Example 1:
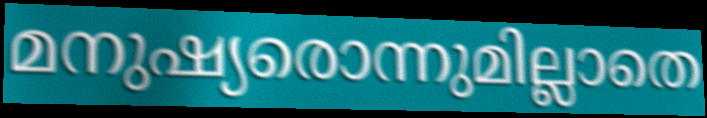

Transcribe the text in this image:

മനുഷ്യരൊന്നുമില്ലാതെ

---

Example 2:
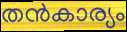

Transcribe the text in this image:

തൻകാര്യം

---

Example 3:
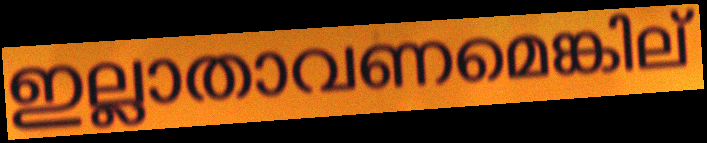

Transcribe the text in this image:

ഇല്ലാതാവണമെങ്കില്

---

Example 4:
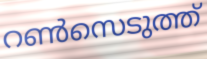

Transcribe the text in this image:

റൺസെടുത്ത്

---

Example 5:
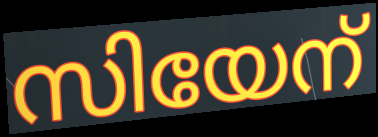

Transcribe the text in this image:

സിയേന്